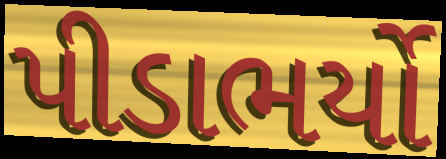
પીડાભર્યો